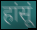
हांसूं